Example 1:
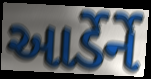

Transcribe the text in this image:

આર્ડેર્ને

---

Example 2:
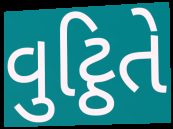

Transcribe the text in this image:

વુટ્ઠિતે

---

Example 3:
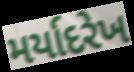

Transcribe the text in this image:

મર્યાદરેખ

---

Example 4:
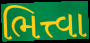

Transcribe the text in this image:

ભિત્ત્વા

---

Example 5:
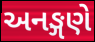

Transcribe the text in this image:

અનઙ્ગણે